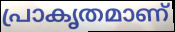
പ്രാകൃതമാണ്